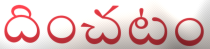
దించటం